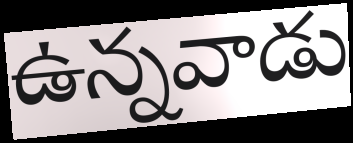
ఉన్నవాడు